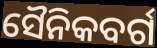
ସୈନିକବର୍ଗ